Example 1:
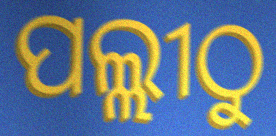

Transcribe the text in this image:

ପଲ୍ଲୀଠୁ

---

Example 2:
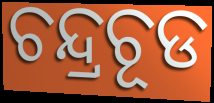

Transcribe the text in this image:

ଚନ୍ଦ୍ରଚୂଡ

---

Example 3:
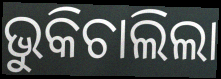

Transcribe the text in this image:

ଭୁକିଚାଲିଲା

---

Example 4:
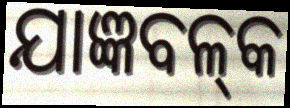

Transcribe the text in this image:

ଯାଜ୍ଞବଳ୍‌କ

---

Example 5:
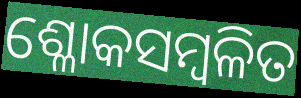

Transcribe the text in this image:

ଶ୍ଳୋକସମ୍ବଳିତ